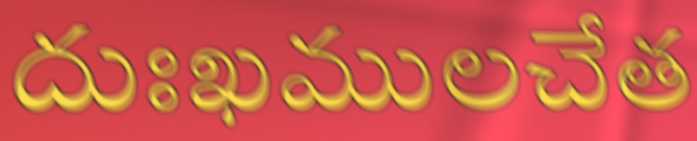
దుఃఖములచేత